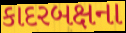
કાદરબક્ષના